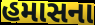
હમાસના